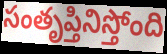
సంతృప్తినిస్తోంది